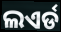
ଲଏର୍ଡ